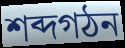
শব্দগঠন